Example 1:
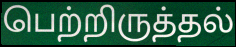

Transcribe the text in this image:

பெற்றிருத்தல்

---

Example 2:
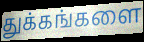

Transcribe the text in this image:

துக்கங்களை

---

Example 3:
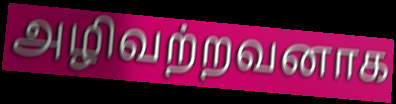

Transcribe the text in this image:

அழிவற்றவனாக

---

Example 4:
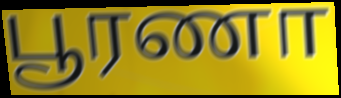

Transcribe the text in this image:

பூரணா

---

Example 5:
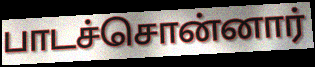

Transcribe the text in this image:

பாடச்சொன்னார்